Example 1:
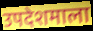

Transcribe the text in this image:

उपदेशमाला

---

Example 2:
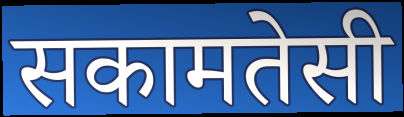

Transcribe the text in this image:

सकामतेसी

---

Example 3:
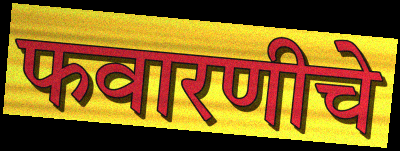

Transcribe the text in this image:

फवारणीचे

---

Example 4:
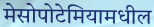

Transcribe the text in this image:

मेसोपोटेमियामधील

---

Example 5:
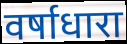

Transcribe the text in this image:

वर्षाधारा